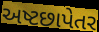
અષ્ટછાપેતર